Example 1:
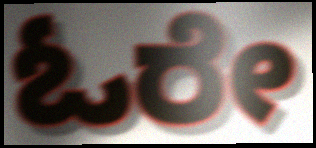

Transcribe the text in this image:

ಓರೇ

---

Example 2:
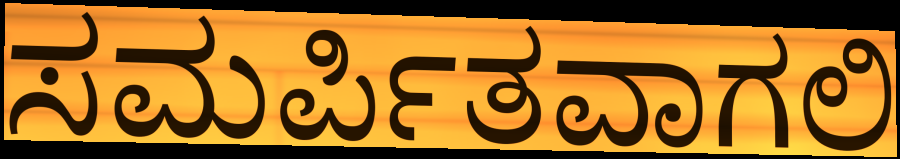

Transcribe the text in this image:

ಸಮರ್ಪಿತವಾಗಲಿ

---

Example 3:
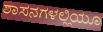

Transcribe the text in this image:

ಶಾಸನಗಳಲ್ಲಿಯೂ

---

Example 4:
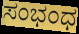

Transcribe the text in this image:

ಸಂಭಂಧ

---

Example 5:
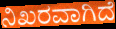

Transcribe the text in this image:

ನಿಖರವಾಗಿದೆ